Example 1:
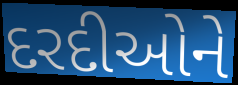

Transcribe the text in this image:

દરદીઓને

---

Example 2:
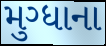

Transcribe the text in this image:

મુગ્ધાના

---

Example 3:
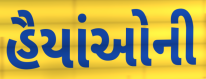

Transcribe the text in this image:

હૈયાંઓની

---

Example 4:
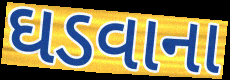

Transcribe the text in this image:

ઘડવાના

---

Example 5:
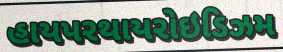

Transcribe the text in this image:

હાયપરથાયરોઇડિઝમ